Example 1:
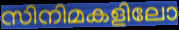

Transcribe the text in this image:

സിനിമകളിലോ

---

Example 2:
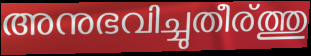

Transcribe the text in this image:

അനുഭവിച്ചുതീര്ത്തു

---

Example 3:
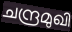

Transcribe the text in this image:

ചന്ദ്രമുഖി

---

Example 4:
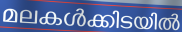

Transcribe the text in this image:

മലകൾക്കിടയിൽ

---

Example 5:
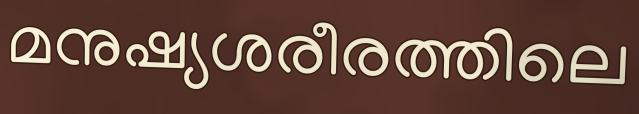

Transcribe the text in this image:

മനുഷ്യശരീരത്തിലെ